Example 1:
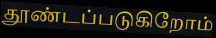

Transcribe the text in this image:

தூண்டப்படுகிறோம்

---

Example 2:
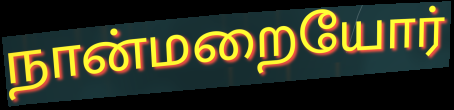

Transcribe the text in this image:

நான்மறையோர்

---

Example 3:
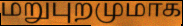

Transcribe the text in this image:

மறுபுறமுமாக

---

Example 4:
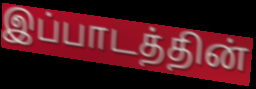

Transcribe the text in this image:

இப்பாடத்தின்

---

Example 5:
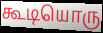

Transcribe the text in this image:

கூடியொரு